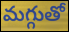
మగ్గుతో